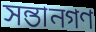
সন্তানগণ